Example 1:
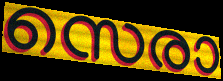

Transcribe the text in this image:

സെരാ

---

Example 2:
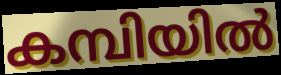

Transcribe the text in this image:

കമ്പിയിൽ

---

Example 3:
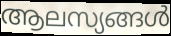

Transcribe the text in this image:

ആലസ്യങ്ങൾ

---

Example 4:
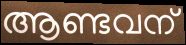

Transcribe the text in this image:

ആണ്ടവന്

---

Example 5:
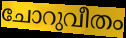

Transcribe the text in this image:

ചോറുവീതം